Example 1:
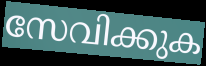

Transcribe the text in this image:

സേവിക്കുക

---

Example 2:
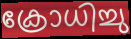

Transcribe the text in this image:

ക്രോധിച്ചു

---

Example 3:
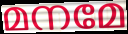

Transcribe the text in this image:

മനമേ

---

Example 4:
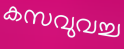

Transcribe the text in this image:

കസവുവച്ച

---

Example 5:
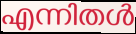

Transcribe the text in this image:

എന്നിതൾ